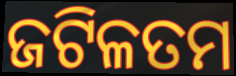
ଜଟିଳତମ